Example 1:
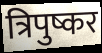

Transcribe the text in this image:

त्रिपुष्कर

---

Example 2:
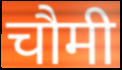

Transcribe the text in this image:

चौमी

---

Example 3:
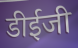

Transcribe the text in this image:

डीईजी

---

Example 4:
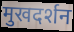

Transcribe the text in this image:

मुखदर्शन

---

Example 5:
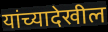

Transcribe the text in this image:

यांच्यादेखील